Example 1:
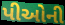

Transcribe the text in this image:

પીઓની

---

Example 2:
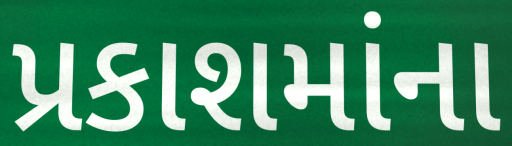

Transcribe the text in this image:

પ્રકાશમાંના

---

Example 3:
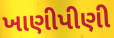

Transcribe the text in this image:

ખાણીપીણી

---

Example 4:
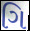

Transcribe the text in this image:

ગિ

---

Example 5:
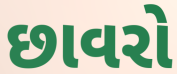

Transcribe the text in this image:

છાવરો